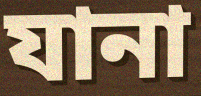
যানা